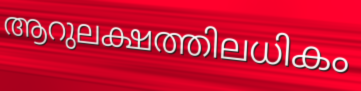
ആറുലക്ഷത്തിലധികം